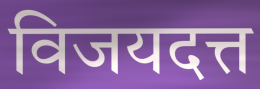
विजयदत्त